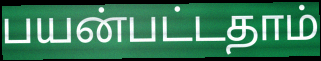
பயன்பட்டதாம்